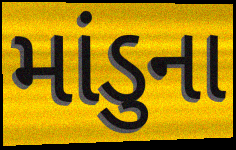
માંડુના